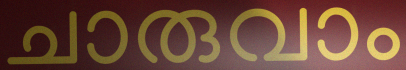
ചാരുവാം